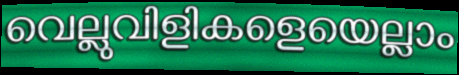
വെല്ലുവിളികളെയെല്ലാം